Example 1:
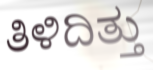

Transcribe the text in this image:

ತಿಳಿದಿತ್ತು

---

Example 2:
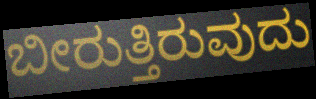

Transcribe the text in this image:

ಬೀರುತ್ತಿರುವುದು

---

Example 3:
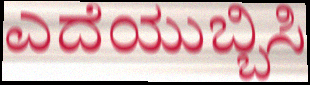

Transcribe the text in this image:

ಎದೆಯುಬ್ಬಿಸಿ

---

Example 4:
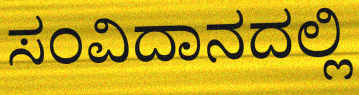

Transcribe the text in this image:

ಸಂವಿದಾನದಲ್ಲಿ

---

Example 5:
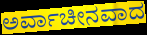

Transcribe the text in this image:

ಅರ್ವಾಚೀನವಾದ